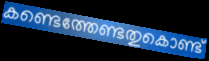
കണ്ടെത്തേണ്ടതുകൊണ്ട്